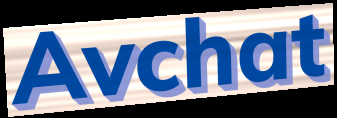
Avchat